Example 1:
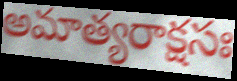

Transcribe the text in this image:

అమాత్యరాక్షసః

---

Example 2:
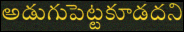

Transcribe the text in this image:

అడుగుపెట్టకూడదని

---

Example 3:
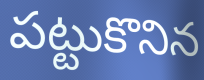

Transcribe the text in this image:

పట్టుకొనిన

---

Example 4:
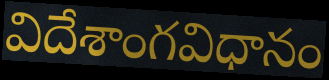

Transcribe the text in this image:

విదేశాంగవిధానం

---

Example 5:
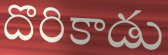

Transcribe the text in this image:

దొరికాడు